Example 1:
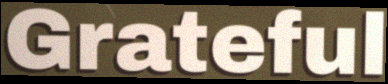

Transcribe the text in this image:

Grateful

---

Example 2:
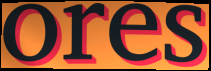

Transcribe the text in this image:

ores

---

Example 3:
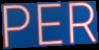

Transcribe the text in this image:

PER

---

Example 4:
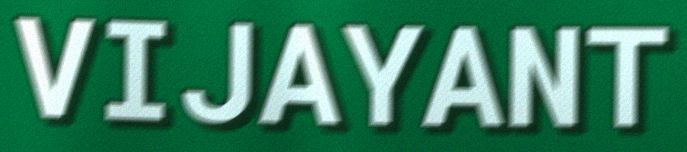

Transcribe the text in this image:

VIJAYANT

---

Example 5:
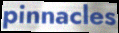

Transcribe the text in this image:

pinnacles